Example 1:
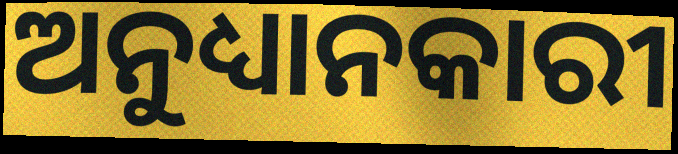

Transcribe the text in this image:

ଅନୁଧ୍ୟାନକାରୀ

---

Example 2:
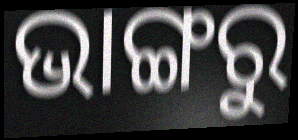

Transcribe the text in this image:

ଭାଙ୍ଗରୁ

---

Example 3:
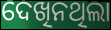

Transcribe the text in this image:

ଦେଖିନଥିଲା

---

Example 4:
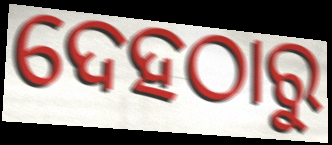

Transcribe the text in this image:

ଦେହଠାରୁ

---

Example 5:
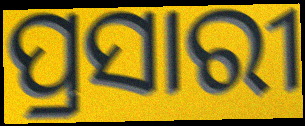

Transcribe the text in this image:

ପ୍ରସାରୀ